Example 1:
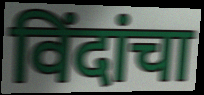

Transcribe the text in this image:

विंदांचा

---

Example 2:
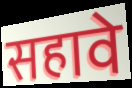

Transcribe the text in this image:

सहावे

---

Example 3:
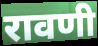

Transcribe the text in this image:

रावणी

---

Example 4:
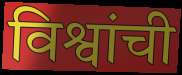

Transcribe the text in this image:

विश्वांची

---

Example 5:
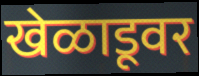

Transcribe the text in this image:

खेळाडूवर